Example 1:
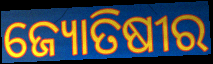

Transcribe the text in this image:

ଜ୍ୟୋତିଷୀର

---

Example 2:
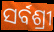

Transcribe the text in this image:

ସର୍ବଶ୍ରୀ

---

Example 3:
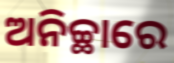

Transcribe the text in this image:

ଅନିଚ୍ଛାରେ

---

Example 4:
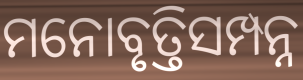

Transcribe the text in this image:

ମନୋବୃତ୍ତିସମ୍ପନ୍ନ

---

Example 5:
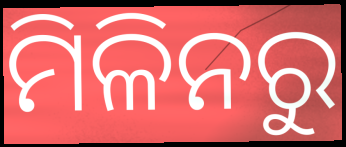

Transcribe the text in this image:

ମିଳିନରୁ